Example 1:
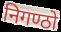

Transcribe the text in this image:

निगण्ठो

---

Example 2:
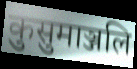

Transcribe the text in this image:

कुसुमाञ्जलि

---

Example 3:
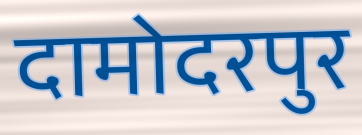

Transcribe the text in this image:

दामोदरपुर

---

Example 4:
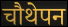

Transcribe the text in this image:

चौथेपन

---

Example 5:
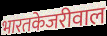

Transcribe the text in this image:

भारतकेजरीवाल